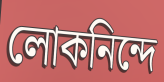
লোকনিন্দে